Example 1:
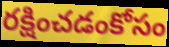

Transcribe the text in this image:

రక్షించడంకోసం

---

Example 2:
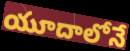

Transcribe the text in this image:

యూదాలోనే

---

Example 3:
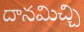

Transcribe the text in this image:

దానమిచ్చి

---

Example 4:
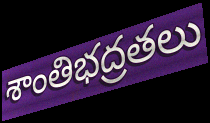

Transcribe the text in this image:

శాంతిభద్రతలు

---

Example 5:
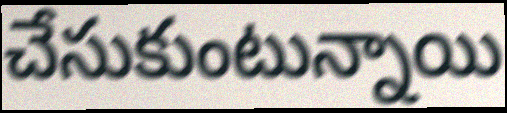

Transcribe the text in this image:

చేసుకుంటున్నాయి